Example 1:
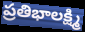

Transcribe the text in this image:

ప్రతిభాలక్ష్మి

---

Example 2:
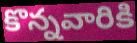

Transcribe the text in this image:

కొన్నవారికి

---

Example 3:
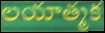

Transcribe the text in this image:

లయాత్మక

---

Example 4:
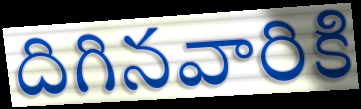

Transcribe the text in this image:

దిగినవారికి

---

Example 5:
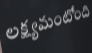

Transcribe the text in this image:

లక్ష్యమంటోంది